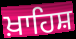
ਖ਼ਾਹਿਸ਼